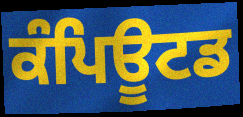
ਕੰਪਿਊਟਡ